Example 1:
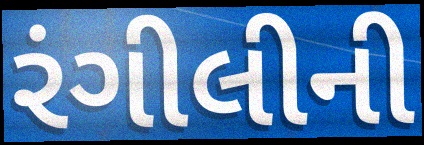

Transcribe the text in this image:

રંગીલીની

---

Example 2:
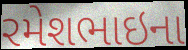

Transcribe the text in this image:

રમેશભાઇના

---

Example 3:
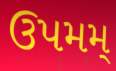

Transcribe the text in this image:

ઉપમમ્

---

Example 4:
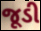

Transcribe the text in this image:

જૂડી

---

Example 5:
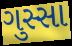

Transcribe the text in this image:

ગુસ્સા